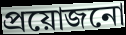
প্ৰয়োজনো